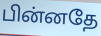
பின்னதே